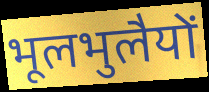
भूलभुलैयों